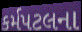
કર્મપટલના